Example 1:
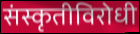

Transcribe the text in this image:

संस्कृतीविरोधी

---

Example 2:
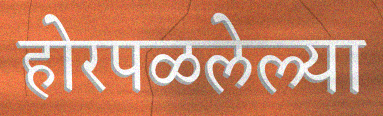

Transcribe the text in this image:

होरपळलेल्या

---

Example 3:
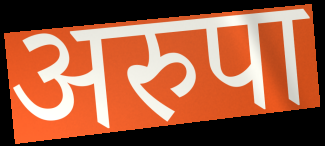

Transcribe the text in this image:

अरुपा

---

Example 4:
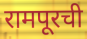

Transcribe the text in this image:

रामपूरची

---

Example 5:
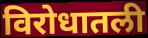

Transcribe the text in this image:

विरोधातली